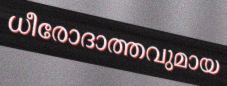
ധീരോദാത്തവുമായ